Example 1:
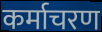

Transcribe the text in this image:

कर्माचरण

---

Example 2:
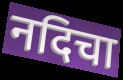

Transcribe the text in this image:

नदिचा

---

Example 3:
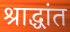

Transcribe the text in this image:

श्राद्धांत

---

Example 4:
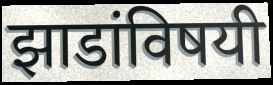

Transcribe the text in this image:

झाडांविषयी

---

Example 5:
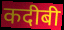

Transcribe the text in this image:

कदीबी